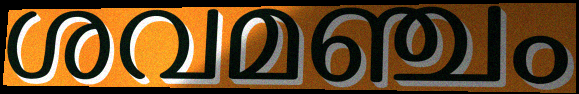
ശവമഞ്ചം